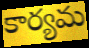
కార్యమ